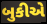
બુકીએ